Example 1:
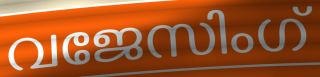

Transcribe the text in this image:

വജേസിംഗ്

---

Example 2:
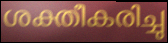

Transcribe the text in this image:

ശക്തീകരിച്ചു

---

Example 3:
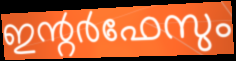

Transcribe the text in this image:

ഇന്റർഫേസും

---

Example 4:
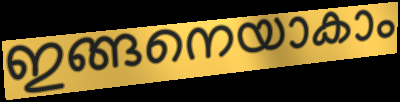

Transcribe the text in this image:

ഇങ്ങനെയാകാം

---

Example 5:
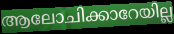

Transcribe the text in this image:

ആലോചിക്കാറേയില്ല